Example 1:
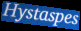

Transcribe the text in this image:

Hystaspes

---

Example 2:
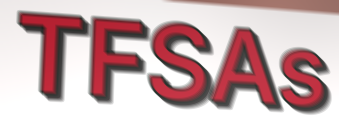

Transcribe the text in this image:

TFSAs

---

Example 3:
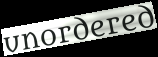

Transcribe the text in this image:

unordered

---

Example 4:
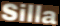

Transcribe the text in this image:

Silla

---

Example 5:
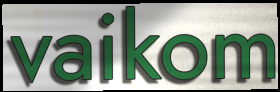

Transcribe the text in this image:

vaikom